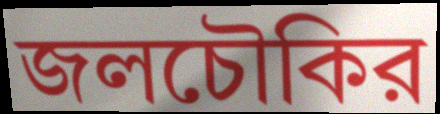
জলচৌকির